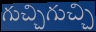
గుచ్చిగుచ్చి